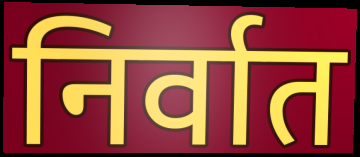
निर्वात